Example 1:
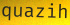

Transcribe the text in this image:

quazih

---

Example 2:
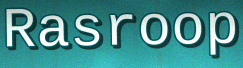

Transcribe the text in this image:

Rasroop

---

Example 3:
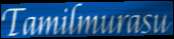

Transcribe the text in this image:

Tamilmurasu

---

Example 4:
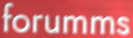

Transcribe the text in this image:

forumms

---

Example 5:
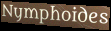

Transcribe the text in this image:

Nymphoides